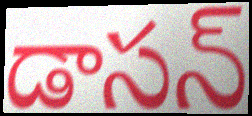
డాసన్